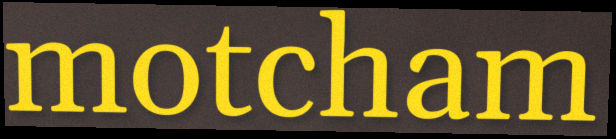
motcham